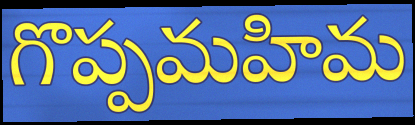
గొప్పమహిమ